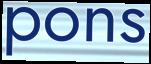
pons